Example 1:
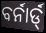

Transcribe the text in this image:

ବର୍ନାର୍ଡ୍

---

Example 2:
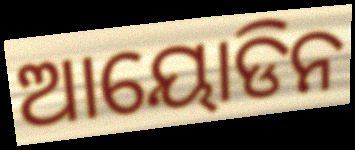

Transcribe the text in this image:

ଆୟୋଡିନ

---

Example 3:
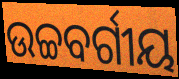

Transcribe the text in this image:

ଉଚ୍ଚବର୍ଗୀୟ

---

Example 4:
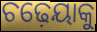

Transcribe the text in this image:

ଚଢ଼େୟାକୁ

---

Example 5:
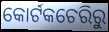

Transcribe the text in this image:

କୋର୍ଟକଚେରିରୁ